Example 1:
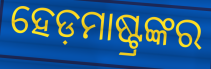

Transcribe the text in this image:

ହେଡ଼ମାଷ୍ଟ୍ରଙ୍କର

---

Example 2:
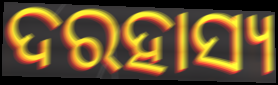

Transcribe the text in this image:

ଦରହାସ୍ୟ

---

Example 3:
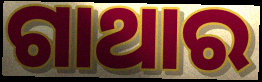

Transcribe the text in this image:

ଗାଥାର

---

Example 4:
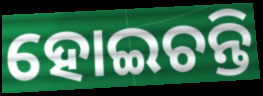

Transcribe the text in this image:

ହୋଇଚନ୍ତି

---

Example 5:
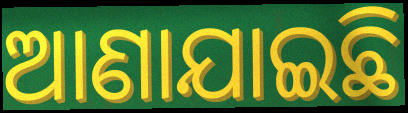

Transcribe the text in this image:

ଆଣାଯାଇଛି